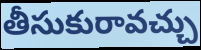
తీసుకురావచ్చు